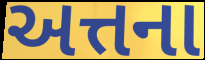
અત્તના